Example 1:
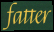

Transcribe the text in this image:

fatter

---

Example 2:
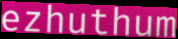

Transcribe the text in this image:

ezhuthum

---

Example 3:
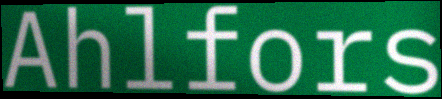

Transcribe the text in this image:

Ahlfors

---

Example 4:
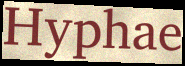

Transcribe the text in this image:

Hyphae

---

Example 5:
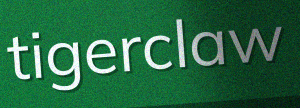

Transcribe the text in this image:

tigerclaw